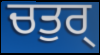
ਚਤੁਰ੍